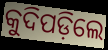
କୁଦିପଡ଼ିଲେ